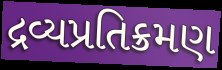
દ્રવ્યપ્રતિક્રમણ